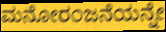
ಮನೋರಂಜನೆಯನ್ನೇ